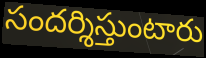
సందర్శిస్తుంటారు